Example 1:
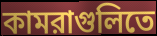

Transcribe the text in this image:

কামরাগুলিতে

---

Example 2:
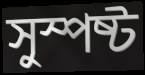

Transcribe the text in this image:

সুস্পষ্ট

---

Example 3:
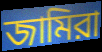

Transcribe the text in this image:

জামিরা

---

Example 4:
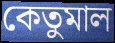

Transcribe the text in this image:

কেতুমাল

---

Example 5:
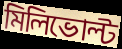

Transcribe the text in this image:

মিলিভোল্ট